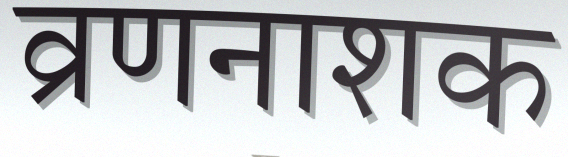
व्रणनाशक